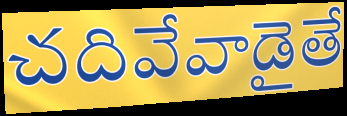
చదివేవాడైతే